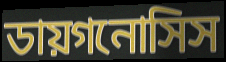
ডায়গনোসিস